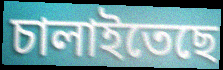
চালাইতেছে